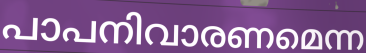
പാപനിവാരണമെന്ന